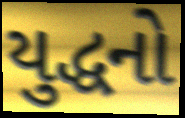
યુદ્ધનો